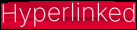
Hyperlinked